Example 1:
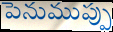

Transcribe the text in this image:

పెనుముప్పు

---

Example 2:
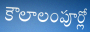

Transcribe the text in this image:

కౌలాలంపూర్లో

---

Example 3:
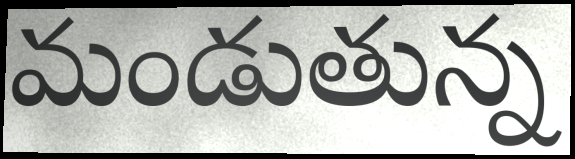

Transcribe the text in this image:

మండుతున్న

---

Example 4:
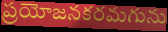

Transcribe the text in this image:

ప్రయోజనకరమగును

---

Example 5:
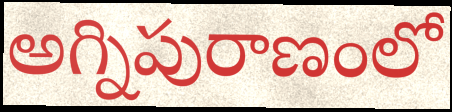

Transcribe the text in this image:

అగ్నిపురాణంలో